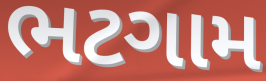
ભટગામ